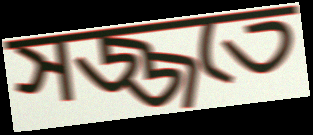
সজ্জতে